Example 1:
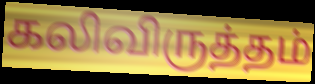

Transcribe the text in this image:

கலிவிருத்தம்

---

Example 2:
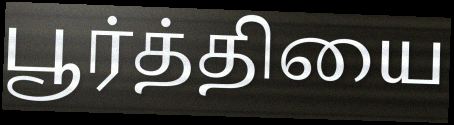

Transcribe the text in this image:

பூர்த்தியை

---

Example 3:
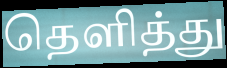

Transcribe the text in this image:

தெளித்து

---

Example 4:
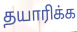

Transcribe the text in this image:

தயாரிக்க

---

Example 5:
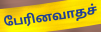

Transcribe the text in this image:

பேரினவாதச்